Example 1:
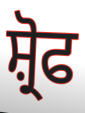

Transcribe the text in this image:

ਸ਼੍ਰੋਫ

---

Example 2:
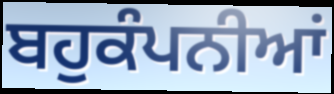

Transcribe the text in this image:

ਬਹੁਕੰਪਨੀਆਂ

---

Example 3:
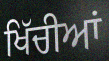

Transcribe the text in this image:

ਖਿੱਚੀਆਂ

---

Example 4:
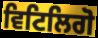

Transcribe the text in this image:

ਵਿਟਿਲਿਗੋ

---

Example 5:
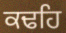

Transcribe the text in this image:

ਕਢਹਿ